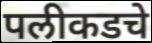
पलीकडचे